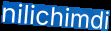
nilichimdi